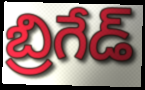
బ్రిగేడ్